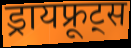
ड्रायफ्रूट्स